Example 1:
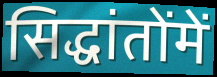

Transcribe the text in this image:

सिद्धांतोंमें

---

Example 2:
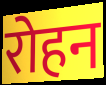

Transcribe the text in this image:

रोहन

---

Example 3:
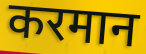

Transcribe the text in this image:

करमान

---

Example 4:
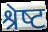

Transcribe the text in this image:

श्रेष्‍ट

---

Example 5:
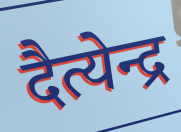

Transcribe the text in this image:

दैत्येन्द्र